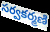
సర్వకర్మణి